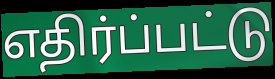
எதிர்ப்பட்டு